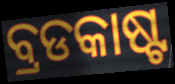
ବ୍ରଡକାଷ୍ଟ